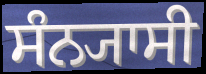
ਸੰਨ੍ਯਾਸੀ